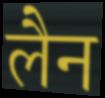
लैन